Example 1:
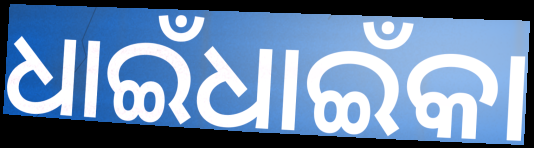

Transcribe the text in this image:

ଧାଇଁଧାଇଁକା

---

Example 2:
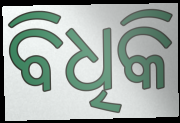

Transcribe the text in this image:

ବିଧିକି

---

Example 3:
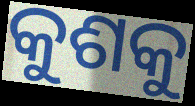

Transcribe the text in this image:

କୁଶକୁ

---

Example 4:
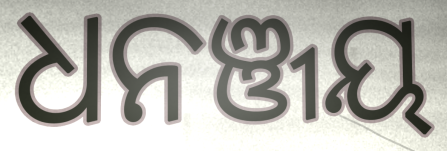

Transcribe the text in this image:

ଧନଞ୍ଜୟ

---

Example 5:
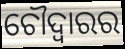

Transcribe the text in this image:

ଚୌଦ୍ୱାରର